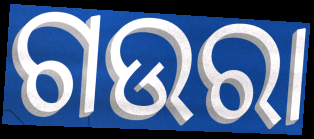
ଗଉରା